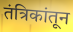
तंत्रिकांतून